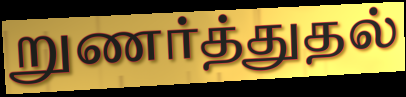
றுணர்த்துதல்